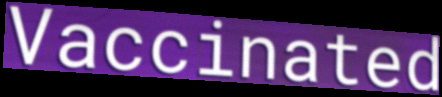
Vaccinated